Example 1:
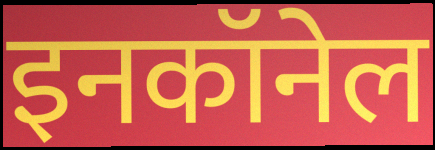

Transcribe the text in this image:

इनकॉनेल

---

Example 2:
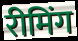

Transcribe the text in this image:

रीमिंग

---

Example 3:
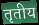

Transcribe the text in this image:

तृतीय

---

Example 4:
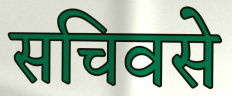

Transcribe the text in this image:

सचिवसे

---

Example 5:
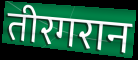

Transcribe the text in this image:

तीरगरान